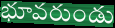
భూవరుండు